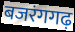
बजरंगगढ़